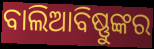
ବାଲିଆବିଷ୍ଣୁଙ୍କର